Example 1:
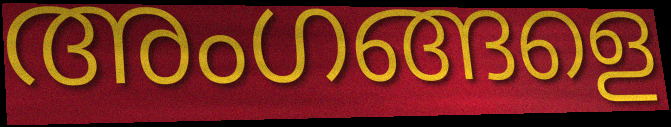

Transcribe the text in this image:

അംഗങ്ങളെ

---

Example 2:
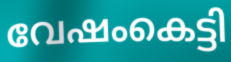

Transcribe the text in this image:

വേഷംകെട്ടി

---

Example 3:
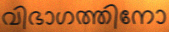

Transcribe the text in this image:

വിഭാഗത്തിനോ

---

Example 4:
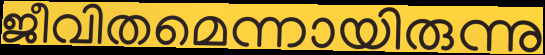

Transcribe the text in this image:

ജീവിതമെന്നായിരുന്നു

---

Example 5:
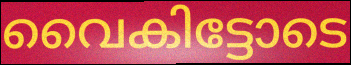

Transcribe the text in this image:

വൈകിട്ടോടെ